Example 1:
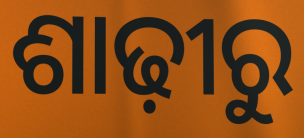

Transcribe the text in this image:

ଶାଢ଼ୀରୁ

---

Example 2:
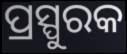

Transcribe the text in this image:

ପ୍ରସ୍ପୁରକ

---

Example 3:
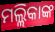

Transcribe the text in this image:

ମଲ୍ଲିକାଙ୍କ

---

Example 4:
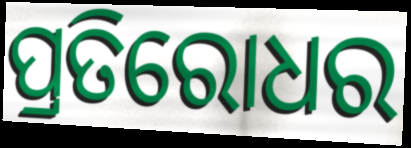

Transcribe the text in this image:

ପ୍ରତିରୋଧର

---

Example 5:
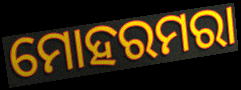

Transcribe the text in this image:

ମୋହରମରା